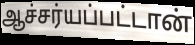
ஆச்சர்யப்பட்டான்